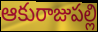
ఆకురాజుపల్లి